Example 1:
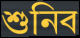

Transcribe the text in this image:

শুনিব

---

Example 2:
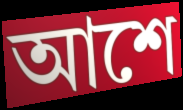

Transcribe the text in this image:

আশে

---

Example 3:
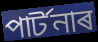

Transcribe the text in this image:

পাৰ্টনাৰ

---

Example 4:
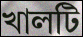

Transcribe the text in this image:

খালটি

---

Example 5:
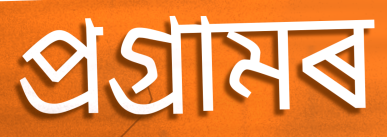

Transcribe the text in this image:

প্ৰগ্ৰামৰ